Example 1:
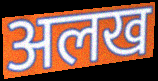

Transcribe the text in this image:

अलख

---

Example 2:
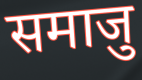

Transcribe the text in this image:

समाजु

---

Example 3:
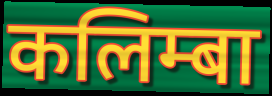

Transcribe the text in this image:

कलिम्बा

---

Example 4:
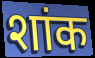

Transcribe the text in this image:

शांक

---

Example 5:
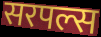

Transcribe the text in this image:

सरपल्स